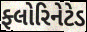
ફ્લોરિનેટેડ